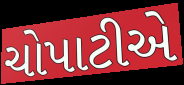
ચોપાટીએ